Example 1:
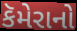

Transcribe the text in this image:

કૅમેરાનો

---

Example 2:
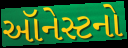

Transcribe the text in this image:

ઑનેસ્ટનો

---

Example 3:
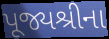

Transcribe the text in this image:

પૂજ્યશ્રીના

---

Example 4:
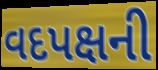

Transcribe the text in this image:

વદપક્ષની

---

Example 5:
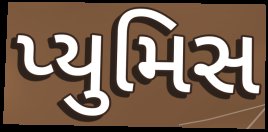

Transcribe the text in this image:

પ્યુમિસ